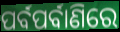
ପର୍ବପର୍ବାଣିରେ